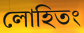
লোহিতং